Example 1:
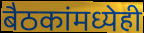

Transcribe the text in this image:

बैठकांमध्येही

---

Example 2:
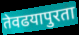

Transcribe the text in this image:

तेवढयापुरता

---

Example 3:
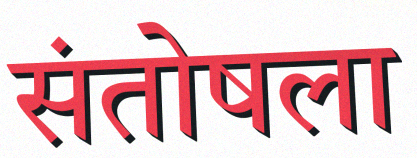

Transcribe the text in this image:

संतोषला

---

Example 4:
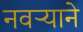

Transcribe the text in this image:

नवर्‍याने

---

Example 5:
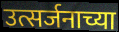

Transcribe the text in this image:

उत्सर्जनाच्या